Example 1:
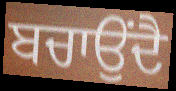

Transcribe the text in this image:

ਬਚਾਉਂਦੈ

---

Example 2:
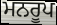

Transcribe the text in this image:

ਮਨਰੂਪ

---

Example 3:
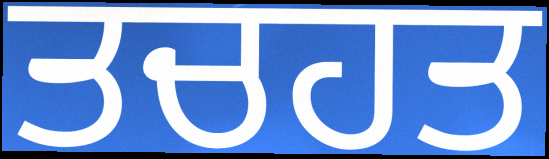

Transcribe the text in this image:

ਤਚਹਤ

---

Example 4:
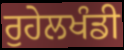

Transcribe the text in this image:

ਰੁਹੇਲਖੰਡੀ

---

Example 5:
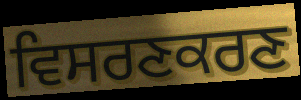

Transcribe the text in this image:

ਵਿਸਰਣਕਰਣ